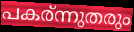
പകര്ന്നുതരും